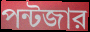
পন্টজার